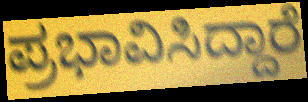
ಪ್ರಭಾವಿಸಿದ್ದಾರೆ